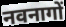
नवनागों